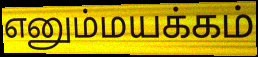
எனும்மயக்கம்